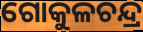
ଗୋକୁଳଚନ୍ଦ୍ର